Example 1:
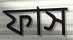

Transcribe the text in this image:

ফাস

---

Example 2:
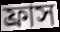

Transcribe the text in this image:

ফ্রাস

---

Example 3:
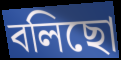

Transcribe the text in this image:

বলিছো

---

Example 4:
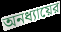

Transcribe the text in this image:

অনধ্যায়ের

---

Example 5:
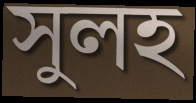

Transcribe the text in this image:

সুলহ